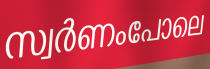
സ്വർണംപോലെ